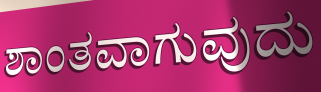
ಶಾಂತವಾಗುವುದು